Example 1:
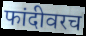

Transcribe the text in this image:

फांदीवरच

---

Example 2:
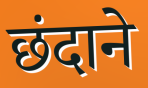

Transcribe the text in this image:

छंदाने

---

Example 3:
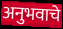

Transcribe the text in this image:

अनुभवाचे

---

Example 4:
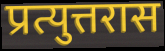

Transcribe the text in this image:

प्रत्युत्तरास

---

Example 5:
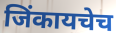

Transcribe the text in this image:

जिंकायचेच